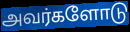
அவர்களோடு